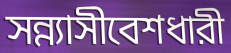
সন্ন্যাসীবেশধারী